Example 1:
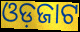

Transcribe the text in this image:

ଓଡ଼ଜାଟ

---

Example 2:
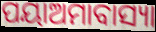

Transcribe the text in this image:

ପୟାଅମାବାସ୍ୟା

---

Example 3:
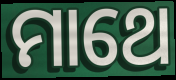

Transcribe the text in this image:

ମାଥେ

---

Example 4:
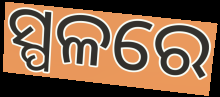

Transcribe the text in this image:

ସ୍ପଳରେ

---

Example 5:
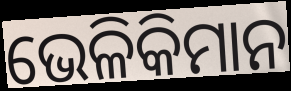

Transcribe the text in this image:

ଭେଳିକିମାନ